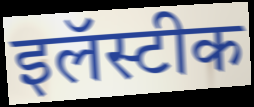
इलॅस्टीक